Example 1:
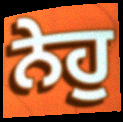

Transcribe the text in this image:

ਨੇਹੁ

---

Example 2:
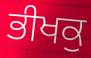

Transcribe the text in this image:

ਭੀਖਕੁ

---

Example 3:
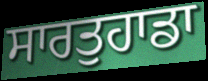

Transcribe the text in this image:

ਸਾਰਤੁਹਾਡਾ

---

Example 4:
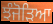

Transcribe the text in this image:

ਝੰਜੋੜਿਆ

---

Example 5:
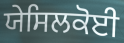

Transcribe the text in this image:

ਯੇਸਿਲਕੋਈ